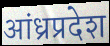
आंध्रप्रदेश